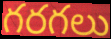
గరగలు